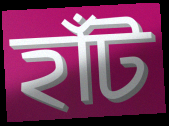
হাঁট